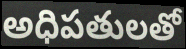
అధిపతులతో